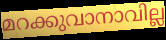
മറക്കുവാനാവില്ല